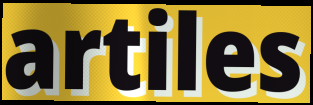
artiles